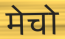
मेचो